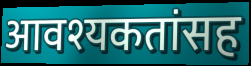
आवश्यकतांसह